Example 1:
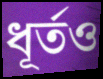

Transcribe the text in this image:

ধূর্তও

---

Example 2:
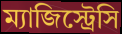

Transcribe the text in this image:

ম্যাজিস্ট্রেসি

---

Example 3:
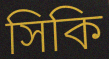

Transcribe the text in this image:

সিকি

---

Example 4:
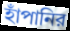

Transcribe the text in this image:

হাঁপানির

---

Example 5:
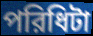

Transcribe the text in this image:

পরিধিটা